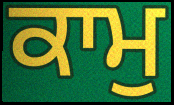
ਕਾਮੁ